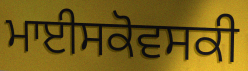
ਮਾਈਸਕੋਵਸਕੀ